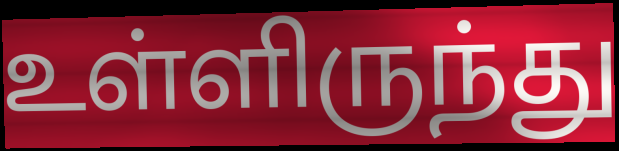
உள்ளிருந்து